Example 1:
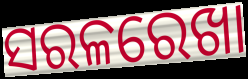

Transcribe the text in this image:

ସରଳରେଖା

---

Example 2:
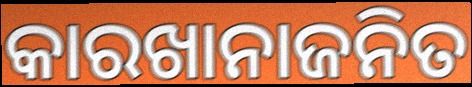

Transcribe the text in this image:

କାରଖାନାଜନିତ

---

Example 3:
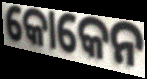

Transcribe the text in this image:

କୋକେନ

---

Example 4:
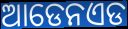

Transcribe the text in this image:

ଆଡେନଏଡ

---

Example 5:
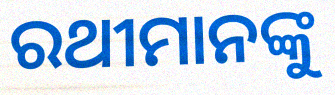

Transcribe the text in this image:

ରଥୀମାନଙ୍କୁ